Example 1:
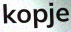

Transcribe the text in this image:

kopje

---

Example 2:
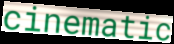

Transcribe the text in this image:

cinematic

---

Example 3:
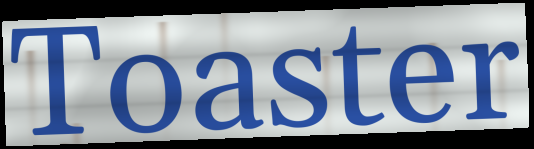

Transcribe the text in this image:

Toaster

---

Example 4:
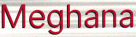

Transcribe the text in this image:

Meghana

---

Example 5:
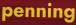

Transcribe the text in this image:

penning